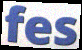
fes